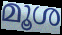
മൂശ